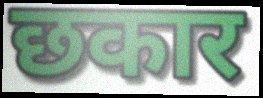
छकार